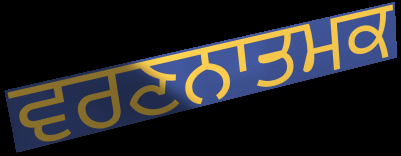
ਵਰਣਨਾਤਮਕ